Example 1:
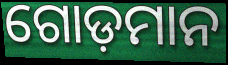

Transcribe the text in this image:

ଗୋଡ଼ମାନ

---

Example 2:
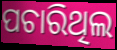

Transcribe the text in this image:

ପଚାରିଥିଲ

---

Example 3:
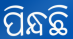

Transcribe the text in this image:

ପିନ୍ଧଛି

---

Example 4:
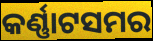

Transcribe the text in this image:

କର୍ଣ୍ଣାଟସମର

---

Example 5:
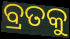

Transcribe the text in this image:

ବ୍ରତକୁ